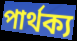
পাৰ্থক্য